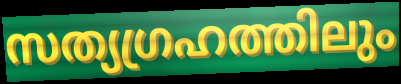
സത്യഗ്രഹത്തിലും